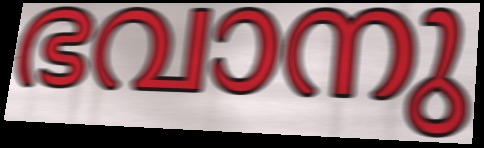
ഭവാനു